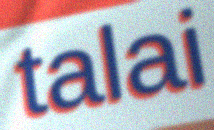
talai